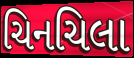
ચિનચિલા